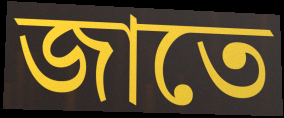
জাতে